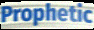
Prophetic